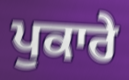
ਪੁਕਾਰੇ